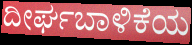
ದೀರ್ಘಬಾಳಿಕೆಯ